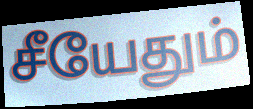
சீயேதும்